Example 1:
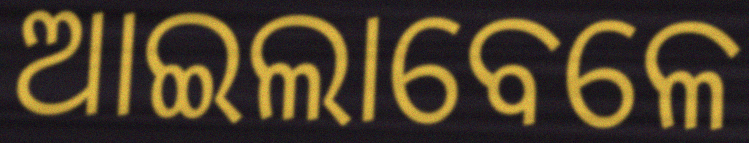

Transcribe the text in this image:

ଆଇଲାବେଳେ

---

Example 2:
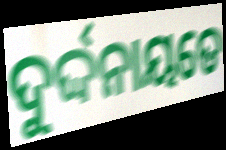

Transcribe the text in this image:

ଦୁର୍ଦ୍ଦନାୟତେ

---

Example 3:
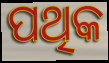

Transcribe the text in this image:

ପଥିକ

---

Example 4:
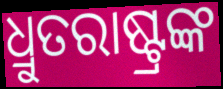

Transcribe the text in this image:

ଧ୍ରୁତରାଷ୍ଟ୍ରଙ୍କ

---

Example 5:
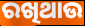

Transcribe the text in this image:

ରଖିଥାଉ